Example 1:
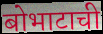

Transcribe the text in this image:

बोभाटाची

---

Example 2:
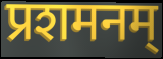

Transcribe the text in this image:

प्रशमनम्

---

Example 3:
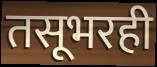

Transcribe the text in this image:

तसूभरही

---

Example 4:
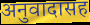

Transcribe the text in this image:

अनुवादासह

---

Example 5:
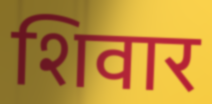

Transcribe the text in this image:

शिवार